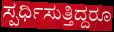
ಸ್ಪರ್ಧಿಸುತ್ತಿದ್ದರೂ